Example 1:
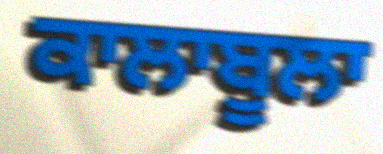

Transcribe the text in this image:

ਕਾਲਾਬੂਲਾ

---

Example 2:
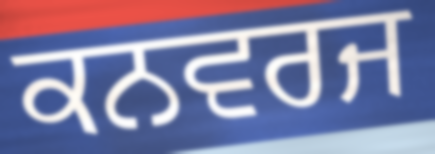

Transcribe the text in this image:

ਕਨਵਰਜ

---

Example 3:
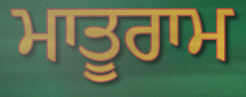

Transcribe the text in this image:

ਮਾਤੂਰਾਮ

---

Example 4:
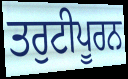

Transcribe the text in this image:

ਤਰੁਟੀਪੂਰਨ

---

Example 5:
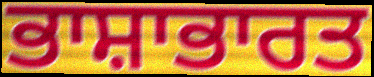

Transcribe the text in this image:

ਭਾਸ਼ਾਭਾਰਤ